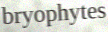
bryophytes